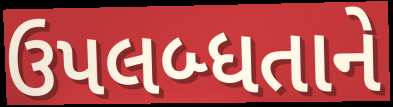
ઉપલબ્ધતાને